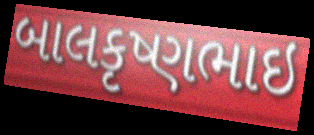
બાલકૃષ્ણભાઇ